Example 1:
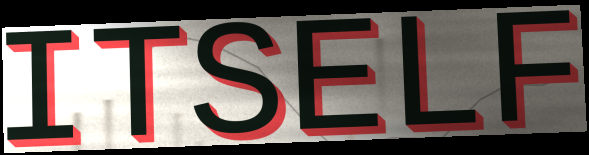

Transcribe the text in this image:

ITSELF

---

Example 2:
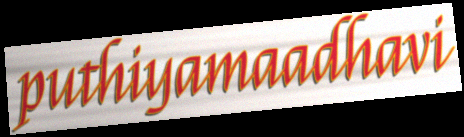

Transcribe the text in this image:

puthiyamaadhavi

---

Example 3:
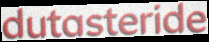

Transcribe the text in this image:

dutasteride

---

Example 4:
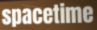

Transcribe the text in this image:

spacetime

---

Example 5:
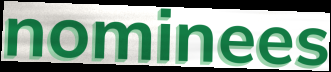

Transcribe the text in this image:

nominees